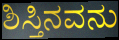
ಶಿಸ್ತಿನವನು